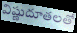
విష్ణుదూతలతో